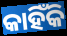
କାହିଁକି